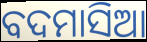
ବଦମାସିଆ